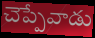
చెప్పేవాడు